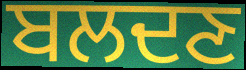
ਬਲਦਣ